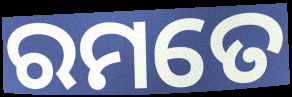
ରମତେ